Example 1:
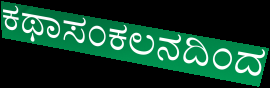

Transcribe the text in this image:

ಕಥಾಸಂಕಲನದಿಂದ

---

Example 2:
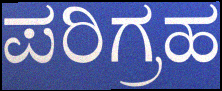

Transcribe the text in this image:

ಪರಿಗ್ರಹ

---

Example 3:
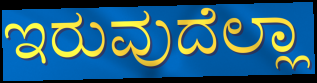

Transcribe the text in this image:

ಇರುವುದೆಲ್ಲಾ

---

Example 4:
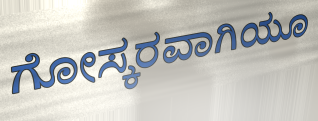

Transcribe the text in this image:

ಗೋಸ್ಕರವಾಗಿಯೂ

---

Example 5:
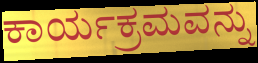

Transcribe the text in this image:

ಕಾರ್ಯಕ್ರಮವನ್ನು